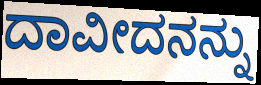
ದಾವೀದನನ್ನು